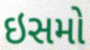
ઇસમો